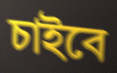
চাইবে